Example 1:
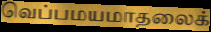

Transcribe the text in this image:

வெப்பமயமாதலைக்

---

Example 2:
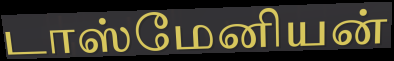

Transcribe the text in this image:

டாஸ்மேனியன்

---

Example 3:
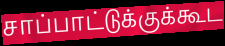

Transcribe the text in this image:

சாப்பாட்டுக்குக்கூட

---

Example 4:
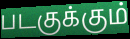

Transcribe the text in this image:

படகுக்கும்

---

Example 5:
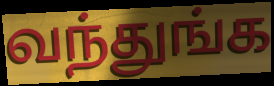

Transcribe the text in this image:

வந்துங்க